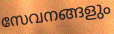
സേവനങ്ങളും